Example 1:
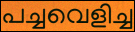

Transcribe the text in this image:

പച്ചവെളിച്ച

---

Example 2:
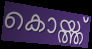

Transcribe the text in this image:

കൊയ്ത്ത്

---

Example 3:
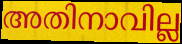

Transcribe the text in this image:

അതിനാവില്ല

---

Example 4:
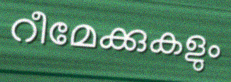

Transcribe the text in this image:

റീമേക്കുകളും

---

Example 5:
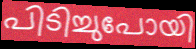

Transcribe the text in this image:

പിടിച്ചുപോയി